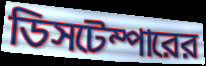
ডিসটেম্পারের